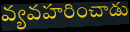
వ్యవహరించాడు